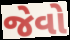
જેવો